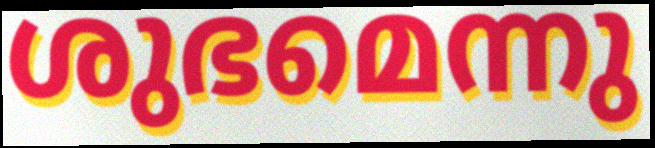
ശുഭമെന്നു